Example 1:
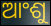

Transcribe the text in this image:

ଆଂଶୁ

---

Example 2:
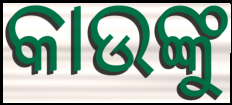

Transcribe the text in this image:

କାଉଙ୍କୁ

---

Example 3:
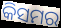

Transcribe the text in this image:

କିସମର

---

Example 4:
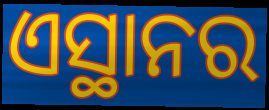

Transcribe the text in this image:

ଏସ୍ଥାନର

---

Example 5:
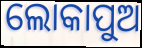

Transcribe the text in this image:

ଲୋକାପୁଅ